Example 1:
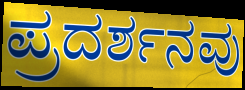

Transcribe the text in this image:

ಪ್ರದರ್ಶನವು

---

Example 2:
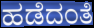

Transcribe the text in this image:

ಹಡೆದಂತೆ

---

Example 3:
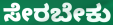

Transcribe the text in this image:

ಸೇರಬೇಕು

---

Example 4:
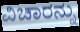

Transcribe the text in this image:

ವಿಚಾರನ್ನು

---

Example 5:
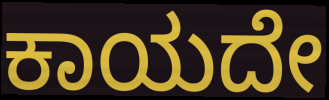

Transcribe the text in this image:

ಕಾಯದೇ